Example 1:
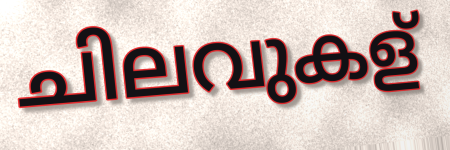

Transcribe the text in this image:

ചിലവുകള്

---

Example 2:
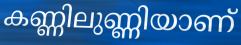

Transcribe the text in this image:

കണ്ണിലുണ്ണിയാണ്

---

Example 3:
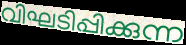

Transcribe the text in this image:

വിഘടിപ്പിക്കുന്ന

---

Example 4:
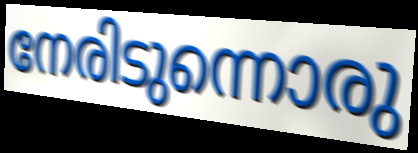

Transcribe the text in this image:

നേരിടുന്നൊരു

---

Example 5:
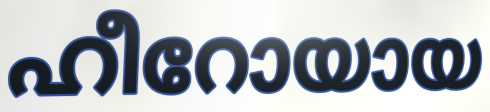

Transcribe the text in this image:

ഹീറോയായ